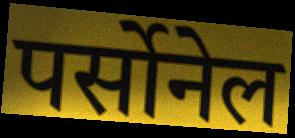
पर्सोनेल